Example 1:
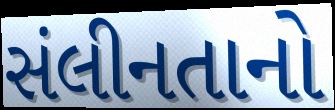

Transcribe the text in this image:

સંલીનતાનો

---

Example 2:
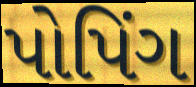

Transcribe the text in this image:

પોપિંગ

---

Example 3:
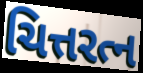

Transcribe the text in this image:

ચિત્તરત્ન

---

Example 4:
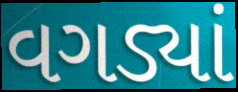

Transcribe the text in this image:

વગડ્યાં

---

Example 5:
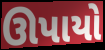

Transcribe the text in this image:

ઊપાયો